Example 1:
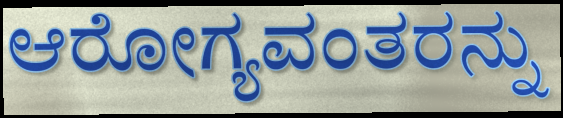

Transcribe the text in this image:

ಆರೋಗ್ಯವಂತರನ್ನು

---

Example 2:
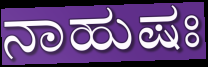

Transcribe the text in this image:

ನಾಹುಷಃ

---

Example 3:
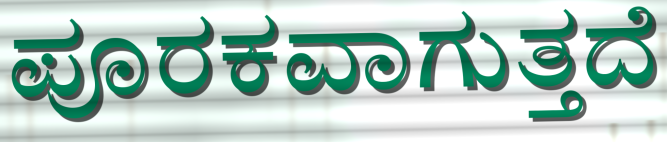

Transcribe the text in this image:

ಪೂರಕವಾಗುತ್ತದೆ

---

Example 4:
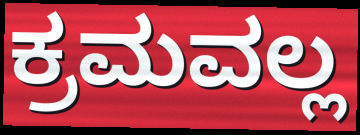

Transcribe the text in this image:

ಕ್ರಮವಲ್ಲ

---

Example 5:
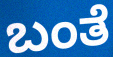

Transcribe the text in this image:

ಬಂತೆ